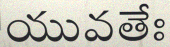
యువతేః